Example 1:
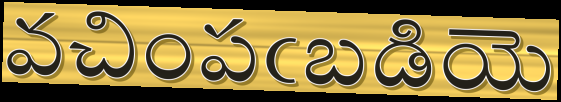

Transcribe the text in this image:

వచింపఁబడియె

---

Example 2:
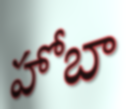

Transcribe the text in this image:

హోబా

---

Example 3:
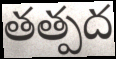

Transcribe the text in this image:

తత్పద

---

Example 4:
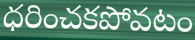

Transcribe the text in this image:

ధరించకపోవటం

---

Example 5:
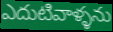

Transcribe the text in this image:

ఎదుటివాళ్ళను